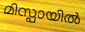
മിസ്പായിൽ